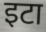
इटा